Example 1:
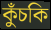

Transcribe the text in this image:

কুঁচকি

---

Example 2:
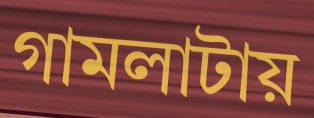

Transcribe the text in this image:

গামলাটায়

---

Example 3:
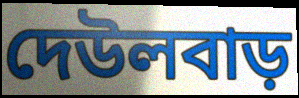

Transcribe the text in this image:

দেউলবাড়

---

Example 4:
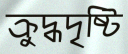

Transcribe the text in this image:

ক্রুদ্ধদৃষ্টি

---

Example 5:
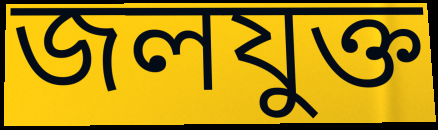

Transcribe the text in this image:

জলযুক্ত